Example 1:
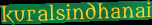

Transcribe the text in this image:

kuralsindhanai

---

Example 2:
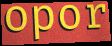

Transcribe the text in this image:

opor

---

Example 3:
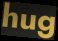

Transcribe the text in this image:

hug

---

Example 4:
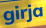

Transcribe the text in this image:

girja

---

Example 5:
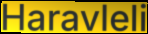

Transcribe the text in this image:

Haravleli